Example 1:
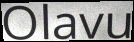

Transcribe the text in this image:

Olavu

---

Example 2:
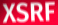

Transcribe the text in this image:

XSRF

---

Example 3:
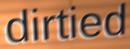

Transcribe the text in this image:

dirtied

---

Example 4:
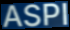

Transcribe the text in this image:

ASPI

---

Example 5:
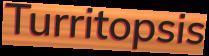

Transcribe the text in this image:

Turritopsis